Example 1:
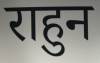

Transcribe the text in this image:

राहुन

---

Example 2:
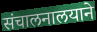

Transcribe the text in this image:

संचालनालयाने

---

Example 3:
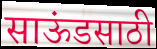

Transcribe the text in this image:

साऊंडसाठी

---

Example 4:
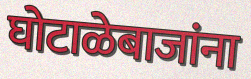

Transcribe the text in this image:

घोटाळेबाजांना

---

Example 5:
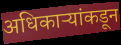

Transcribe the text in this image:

अधिकाऱ्यांकडून